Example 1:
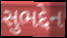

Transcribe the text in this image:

સુભદ્દેન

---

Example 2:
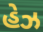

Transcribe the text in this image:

હેઝ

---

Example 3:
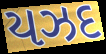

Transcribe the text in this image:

યઝદ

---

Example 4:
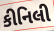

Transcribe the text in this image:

કીનિલી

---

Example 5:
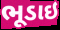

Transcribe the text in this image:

ભૂડાઇ